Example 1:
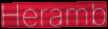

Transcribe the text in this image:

Heramb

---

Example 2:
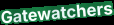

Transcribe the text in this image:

Gatewatchers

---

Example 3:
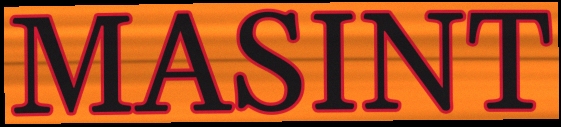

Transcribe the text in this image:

MASINT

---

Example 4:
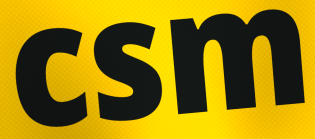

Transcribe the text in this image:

csm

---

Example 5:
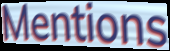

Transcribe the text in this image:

Mentions